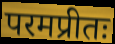
परमप्रीतः